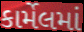
કાર્મેલમાં